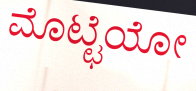
ಮೊಟ್ಟೆಯೋ